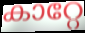
കാറ്റേ